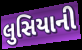
લુસિયાની